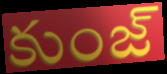
కుంజ్